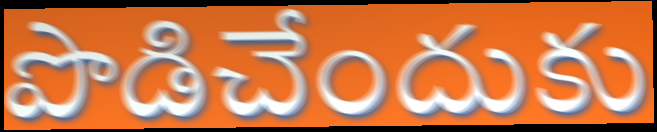
పొడిచేందుకు